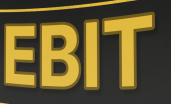
EBIT